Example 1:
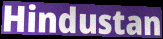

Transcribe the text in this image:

Hindustan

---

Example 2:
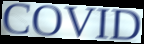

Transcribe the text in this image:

COVID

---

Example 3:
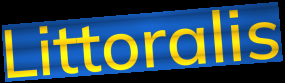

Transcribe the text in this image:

Littoralis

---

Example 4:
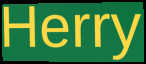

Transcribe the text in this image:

Herry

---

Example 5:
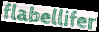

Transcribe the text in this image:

flabellifer